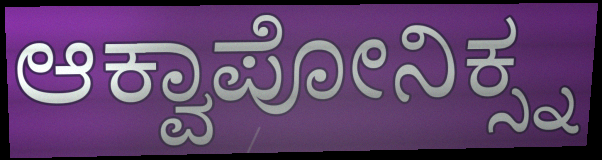
ಆಕ್ವಾಪೋನಿಕ್ಸ್ನ